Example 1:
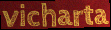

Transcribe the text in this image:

vicharta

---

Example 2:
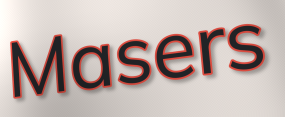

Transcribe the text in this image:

Masers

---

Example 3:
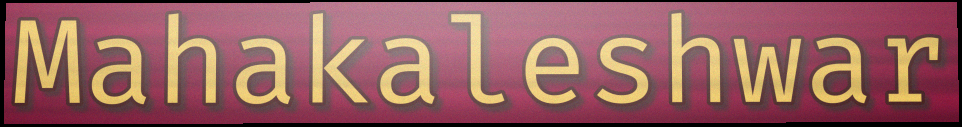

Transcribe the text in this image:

Mahakaleshwar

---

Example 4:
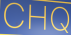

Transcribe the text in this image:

CHQ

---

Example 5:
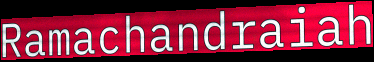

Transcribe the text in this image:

Ramachandraiah